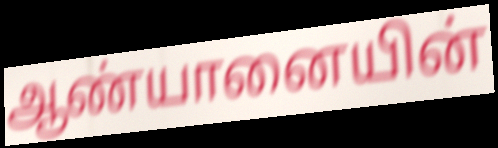
ஆண்யானையின்